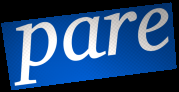
pare